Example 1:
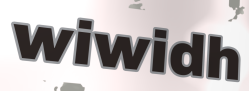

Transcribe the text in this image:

wiwidh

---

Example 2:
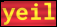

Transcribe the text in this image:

yeil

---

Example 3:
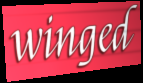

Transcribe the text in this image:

winged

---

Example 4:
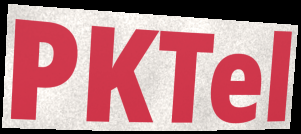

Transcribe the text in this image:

PKTel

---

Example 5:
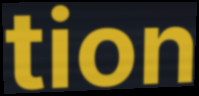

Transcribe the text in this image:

tion